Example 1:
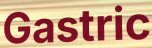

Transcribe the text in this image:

Gastric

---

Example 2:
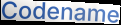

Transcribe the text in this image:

Codename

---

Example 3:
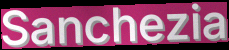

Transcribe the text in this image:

Sanchezia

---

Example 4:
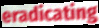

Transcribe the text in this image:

eradicating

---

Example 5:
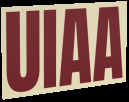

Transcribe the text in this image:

UIAA